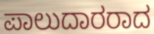
ಪಾಲುದಾರರಾದ